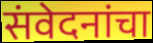
संवेदनांचा